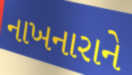
નાખનારાને